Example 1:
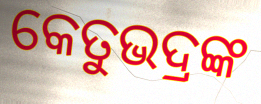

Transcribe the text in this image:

କେତୁଭଦ୍ରଙ୍କ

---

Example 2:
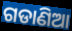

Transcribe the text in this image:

ଗଡାଣିଆ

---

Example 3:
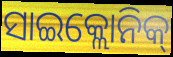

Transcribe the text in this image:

ସାଇକ୍ଲୋନିକ୍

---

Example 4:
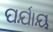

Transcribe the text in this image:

ପର୍ଯାୟ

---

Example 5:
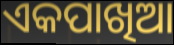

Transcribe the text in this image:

ଏକପାଖିଆ